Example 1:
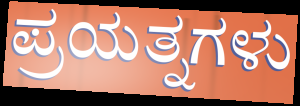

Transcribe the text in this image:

ಪ್ರಯತ್ನಗಳು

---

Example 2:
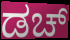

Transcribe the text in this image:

ಡಚ್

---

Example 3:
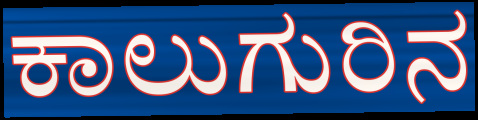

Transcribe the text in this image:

ಕಾಲುಗುರಿನ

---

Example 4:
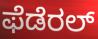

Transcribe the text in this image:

ಫೆಡೆರಲ್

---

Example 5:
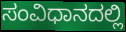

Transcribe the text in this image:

ಸಂವಿಧಾನದಲ್ಲಿ